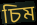
চিম